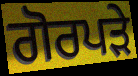
ਗੋਰਪੜੇ